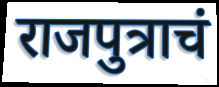
राजपुत्राचं